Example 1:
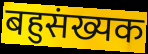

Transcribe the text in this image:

बहुसंख्यक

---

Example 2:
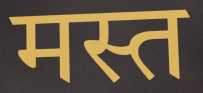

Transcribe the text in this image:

मस्‍त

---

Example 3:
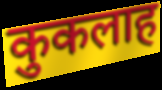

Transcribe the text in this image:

कुकलाह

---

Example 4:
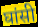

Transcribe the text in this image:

घांसी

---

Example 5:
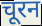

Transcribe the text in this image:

चूरन